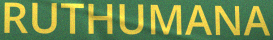
RUTHUMANA